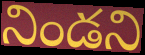
నిండని